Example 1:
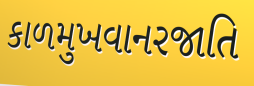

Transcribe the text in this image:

કાળમુખવાનરજાતિ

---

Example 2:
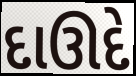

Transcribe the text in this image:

દાઊદે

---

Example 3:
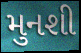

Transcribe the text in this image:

મુનશી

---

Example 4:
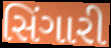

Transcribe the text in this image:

સિંગારી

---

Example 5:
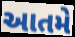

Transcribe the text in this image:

આતમે